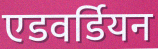
एडवर्डियन